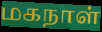
மகநாள்